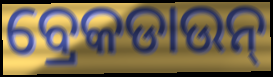
ବ୍ରେକଡାଉନ୍